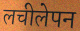
लचीलेपन